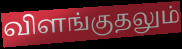
விளங்குதலும்